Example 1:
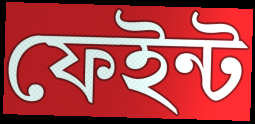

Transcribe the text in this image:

ফেইন্ট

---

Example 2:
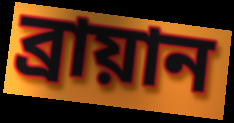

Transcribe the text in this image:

ব্রায়ান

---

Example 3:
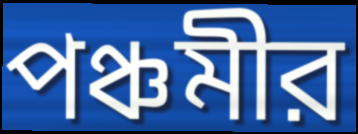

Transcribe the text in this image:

পঞ্চমীর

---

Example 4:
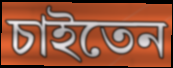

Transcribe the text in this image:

চাইতেন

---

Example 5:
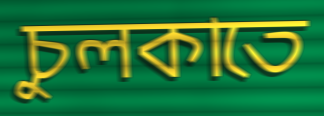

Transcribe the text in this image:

চুলকাতে